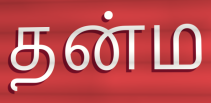
தன்ம